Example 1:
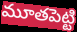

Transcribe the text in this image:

మూతపెట్టి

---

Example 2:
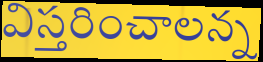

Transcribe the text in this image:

విస్తరించాలన్న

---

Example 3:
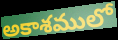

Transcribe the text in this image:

అకాశములో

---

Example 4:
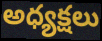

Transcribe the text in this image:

అధ్యక్షలు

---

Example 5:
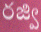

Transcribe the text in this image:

రజ్వి